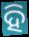
ହି